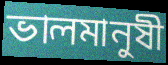
ভালমানুষী